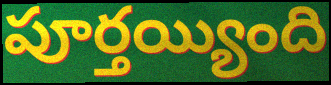
పూర్తయ్యింది